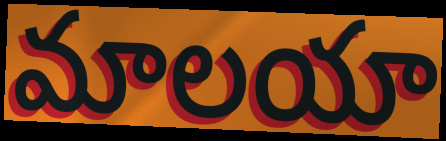
మాలయా